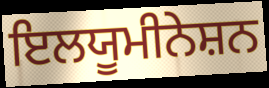
ਇਲਯੂਮੀਨੇਸ਼ਨ